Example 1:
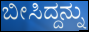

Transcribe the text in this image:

ಬೀಸಿದ್ದನ್ನು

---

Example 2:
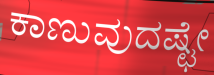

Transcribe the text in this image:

ಕಾಣುವುದಷ್ಟೇ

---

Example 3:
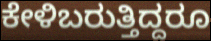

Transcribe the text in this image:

ಕೇಳಿಬರುತ್ತಿದ್ದರೂ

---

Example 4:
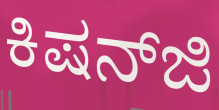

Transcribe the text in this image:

ಕಿಷನ್‌ಜಿ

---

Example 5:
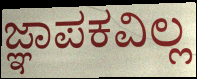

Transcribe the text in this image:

ಜ್ಞಾಪಕವಿಲ್ಲ